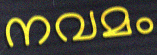
നവമം